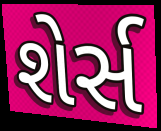
શેર્સ